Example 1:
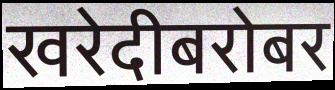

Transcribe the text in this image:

खरेदीबरोबर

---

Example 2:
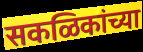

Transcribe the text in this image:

सकळिकांच्या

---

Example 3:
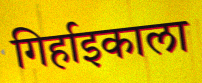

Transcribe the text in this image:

गिर्हाइकाला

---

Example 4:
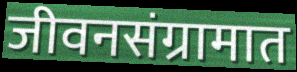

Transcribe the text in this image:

जीवनसंग्रामात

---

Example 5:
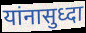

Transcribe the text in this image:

यांनासुध्दा